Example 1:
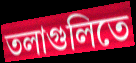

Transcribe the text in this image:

তলাগুলিতে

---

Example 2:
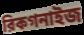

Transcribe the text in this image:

রিকগনাইজ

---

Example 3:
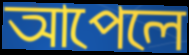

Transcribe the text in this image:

আপেলে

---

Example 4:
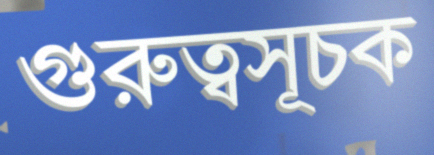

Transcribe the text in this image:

গুরুত্বসূচক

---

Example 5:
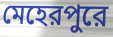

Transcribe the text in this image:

মেহেরপুরে